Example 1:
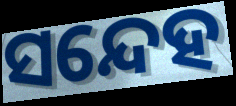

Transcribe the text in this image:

ସନ୍ଦେହ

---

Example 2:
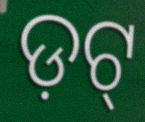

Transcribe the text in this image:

ଡ଼ଟ୍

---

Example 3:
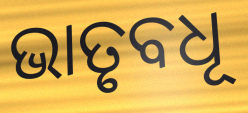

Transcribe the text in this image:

ଭାତୃବଧୂ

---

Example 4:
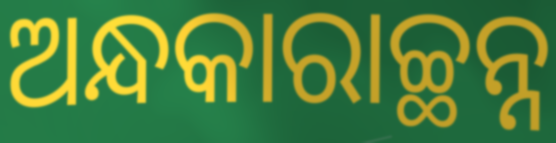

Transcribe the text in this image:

ଅନ୍ଧକାରାଚ୍ଛନ୍ନ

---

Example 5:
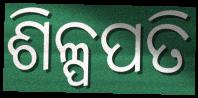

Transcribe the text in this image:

ଶିଳ୍ପପତି